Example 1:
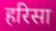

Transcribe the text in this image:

हरिसा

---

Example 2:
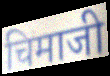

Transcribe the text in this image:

चिमाजी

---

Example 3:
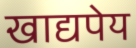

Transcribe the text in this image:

खाद्यपेय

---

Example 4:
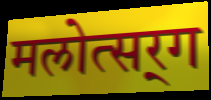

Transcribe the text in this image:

मलोत्सर्ग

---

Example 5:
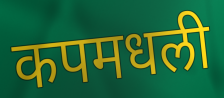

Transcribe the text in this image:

कपमधली